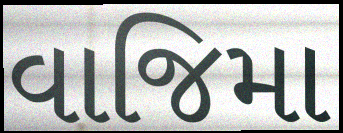
વાજિમા